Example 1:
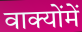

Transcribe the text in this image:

वाक्योंमें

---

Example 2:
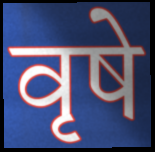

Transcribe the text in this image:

वृषे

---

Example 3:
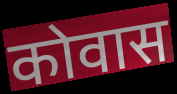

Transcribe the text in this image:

कोवास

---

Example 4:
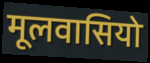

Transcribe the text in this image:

मूलवासियो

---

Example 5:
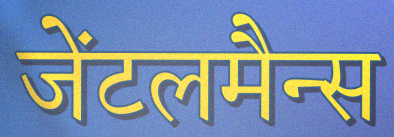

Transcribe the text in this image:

जेंटलमैन्स